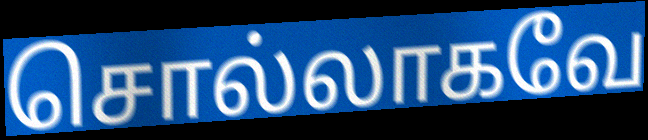
சொல்லாகவே